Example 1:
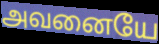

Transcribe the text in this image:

அவனையே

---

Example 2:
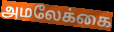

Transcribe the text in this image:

அமலேக்கை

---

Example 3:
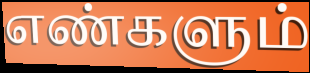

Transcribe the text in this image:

எண்களும்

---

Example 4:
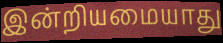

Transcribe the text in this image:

இன்றியமையாது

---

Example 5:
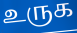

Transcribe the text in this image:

உருக